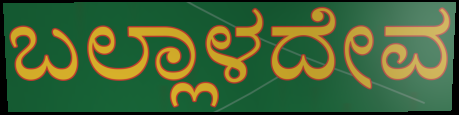
ಬಲ್ಲಾಳದೇವ